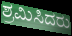
ಶ್ರಮಿಸಿದರು